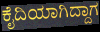
ಕೈದಿಯಾಗಿದ್ದಾಗ